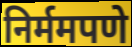
निर्ममपणे